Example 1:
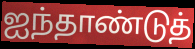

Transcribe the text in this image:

ஐந்தாண்டுத்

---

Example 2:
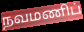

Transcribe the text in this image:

நவமணிப்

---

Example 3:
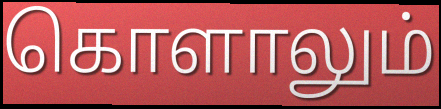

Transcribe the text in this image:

கொளாலும்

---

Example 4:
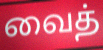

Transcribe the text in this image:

வைத்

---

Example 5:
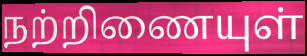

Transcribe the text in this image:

நற்றிணையுள்